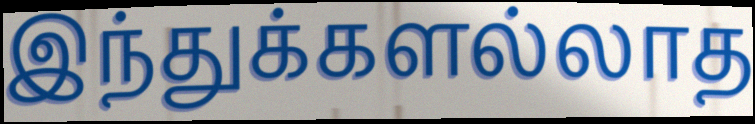
இந்துக்களல்லாத